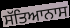
ਸੱਤਿਆਨਾਸ